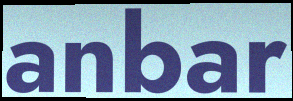
anbar